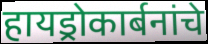
हायड्रोकार्बनांचे